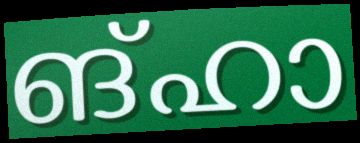
ങ്ഹാ